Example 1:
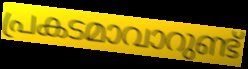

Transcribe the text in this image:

പ്രകടമാവാറുണ്ട്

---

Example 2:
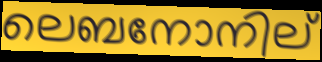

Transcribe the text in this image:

ലെബനോനില്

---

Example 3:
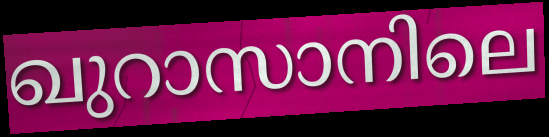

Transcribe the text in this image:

ഖുറാസാനിലെ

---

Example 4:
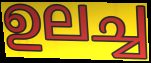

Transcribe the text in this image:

ഉലച്ച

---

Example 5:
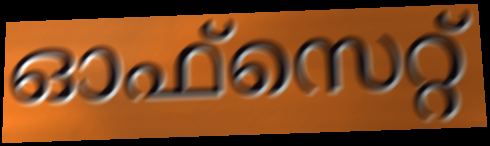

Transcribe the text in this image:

ഓഫ്സെറ്റ്